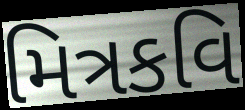
મિત્રકવિ